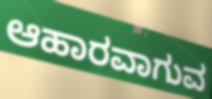
ಆಹಾರವಾಗುವ